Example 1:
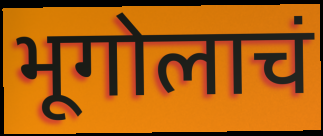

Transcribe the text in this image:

भूगोलाचं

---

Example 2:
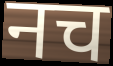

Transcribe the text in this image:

नच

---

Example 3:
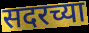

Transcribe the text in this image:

सदरच्या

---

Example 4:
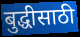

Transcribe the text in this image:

बुद्धीसाठी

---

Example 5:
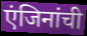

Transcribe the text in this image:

एंजिनांची